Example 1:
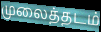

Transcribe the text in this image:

முலைத்தடம்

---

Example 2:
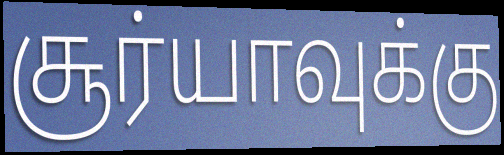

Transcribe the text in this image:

சூர்யாவுக்கு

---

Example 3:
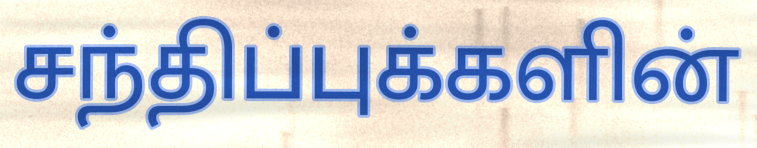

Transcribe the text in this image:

சந்திப்புக்களின்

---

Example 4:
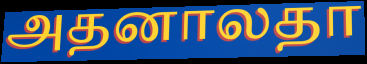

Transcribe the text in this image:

அதனாலதா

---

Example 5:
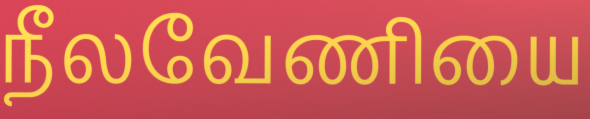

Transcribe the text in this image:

நீலவேணியை